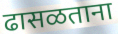
ढासळताना